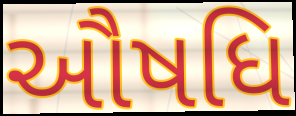
ઔષધિ